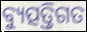
ବ୍ୟୁତ୍ପତ୍ତିଗତ